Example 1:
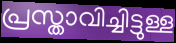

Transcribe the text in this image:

പ്രസ്താവിച്ചിട്ടുള്ള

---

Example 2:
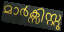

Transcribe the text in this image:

മാർക്സിസ്റ്റു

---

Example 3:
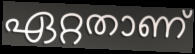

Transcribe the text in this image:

ഏറ്റതാണ്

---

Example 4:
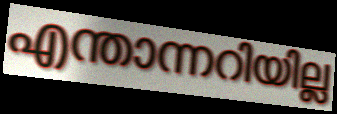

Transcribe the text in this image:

എന്താന്നറിയില്ല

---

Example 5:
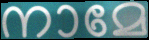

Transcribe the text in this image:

നാമേ